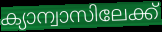
ക്യാന്വാസിലേക്ക്